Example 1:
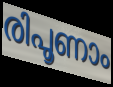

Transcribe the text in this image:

രിപൂണാം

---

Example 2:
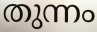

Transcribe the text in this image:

തുന്നം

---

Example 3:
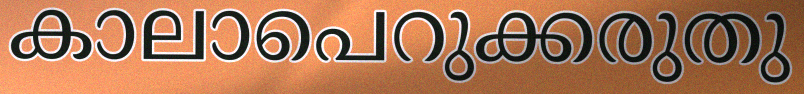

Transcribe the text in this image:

കാലാപെറുക്കരുതു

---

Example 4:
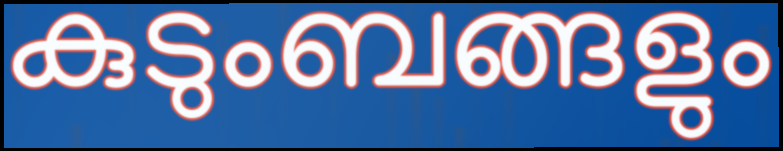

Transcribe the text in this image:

കുടുംബങ്ങളും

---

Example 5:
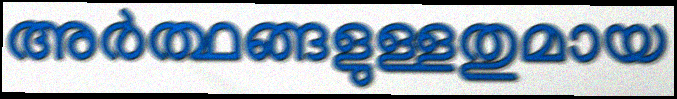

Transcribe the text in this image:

അർത്ഥങ്ങളുള്ളതുമായ